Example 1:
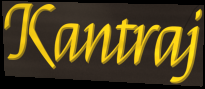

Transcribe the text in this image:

Kantraj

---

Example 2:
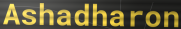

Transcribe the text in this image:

Ashadharon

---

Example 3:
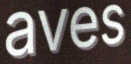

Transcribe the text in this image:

aves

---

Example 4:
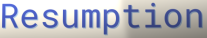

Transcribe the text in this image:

Resumption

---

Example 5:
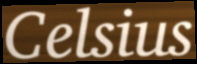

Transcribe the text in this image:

Celsius